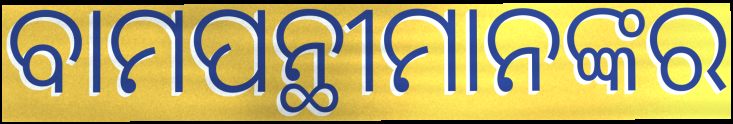
ବାମପନ୍ଥୀମାନଙ୍କର